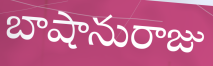
బాషానురాజు